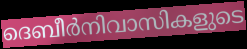
ദെബീർനിവാസികളുടെ